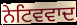
ਨੇਟਿਵਵਾਦ